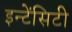
इन्टेंसिटी